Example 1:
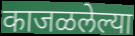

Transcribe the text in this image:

काजळलेल्या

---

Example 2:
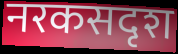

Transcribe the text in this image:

नरकसदृश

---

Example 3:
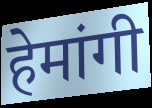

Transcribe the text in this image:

हेमांगी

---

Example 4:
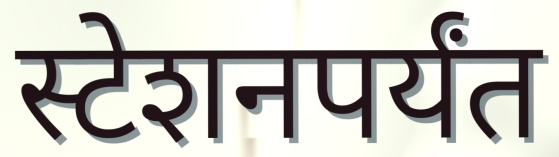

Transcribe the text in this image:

स्टेशनपर्यंत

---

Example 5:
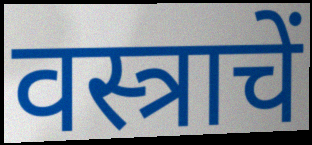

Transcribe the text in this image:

वस्त्राचें